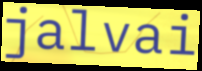
jalvai